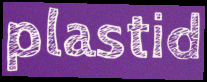
plastid